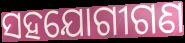
ସହଯୋଗୀଗଣ